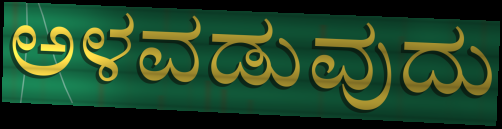
ಅಳವಡುವುದು